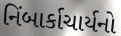
નિંબાર્કાચાર્યનો